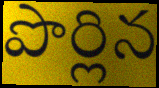
పొర్లిన